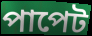
পাপেট